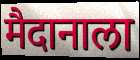
मैदानाला